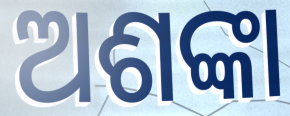
ଅଶଙ୍କା